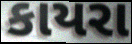
કાયરા